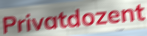
Privatdozent